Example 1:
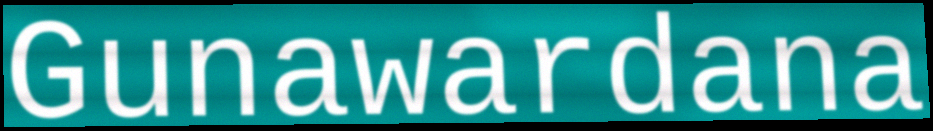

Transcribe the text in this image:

Gunawardana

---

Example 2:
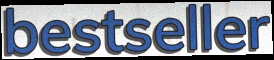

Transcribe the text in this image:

bestseller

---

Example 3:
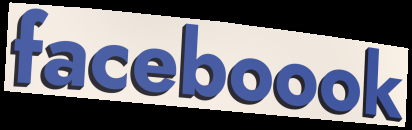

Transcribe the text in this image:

faceboook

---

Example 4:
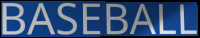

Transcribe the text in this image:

BASEBALL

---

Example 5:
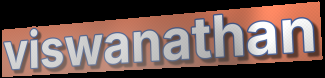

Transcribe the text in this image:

viswanathan